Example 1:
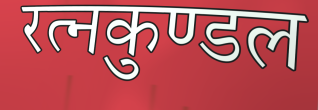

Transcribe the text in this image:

रत्नकुण्डल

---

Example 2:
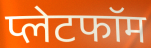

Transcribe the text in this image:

प्लेटफॉम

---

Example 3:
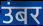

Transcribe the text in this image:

उंबर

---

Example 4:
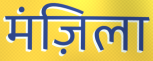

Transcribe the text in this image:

मंज़िला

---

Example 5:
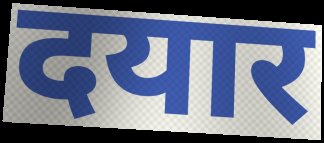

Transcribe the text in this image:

दयार